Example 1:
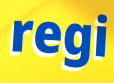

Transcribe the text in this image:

regi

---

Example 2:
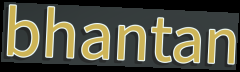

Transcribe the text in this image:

bhantan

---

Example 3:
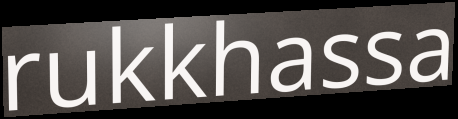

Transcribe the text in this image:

rukkhassa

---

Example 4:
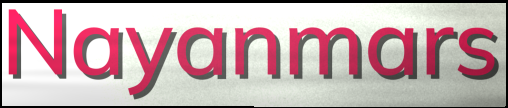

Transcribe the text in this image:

Nayanmars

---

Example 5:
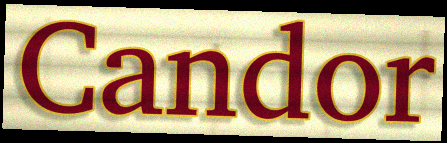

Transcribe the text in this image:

Candor